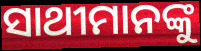
ସାଥୀମାନଙ୍କୁ